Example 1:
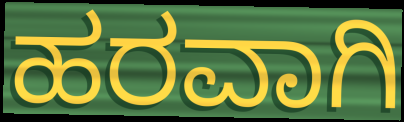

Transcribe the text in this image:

ಹರವಾಗಿ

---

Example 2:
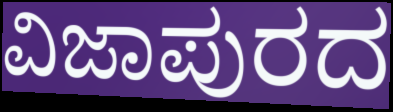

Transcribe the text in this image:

ವಿಜಾಪುರದ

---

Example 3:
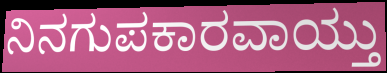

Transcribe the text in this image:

ನಿನಗುಪಕಾರವಾಯ್ತು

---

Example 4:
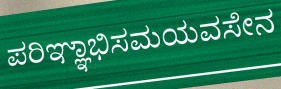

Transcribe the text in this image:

ಪರಿಞ್ಞಾಭಿಸಮಯವಸೇನ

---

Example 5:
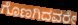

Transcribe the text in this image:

ಗೊಣಗಿದವರೇ